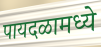
पायदळामध्ये